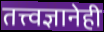
तत्त्वज्ञानेही